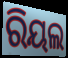
ରିୟଲ